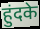
हुंदके